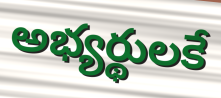
అభ్యర్థులకే